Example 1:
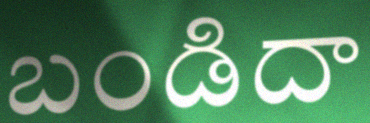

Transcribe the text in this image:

బండిదా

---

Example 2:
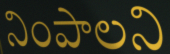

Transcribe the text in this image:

నింపాలని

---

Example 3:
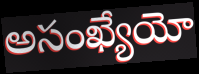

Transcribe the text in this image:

అసంఖ్యేయో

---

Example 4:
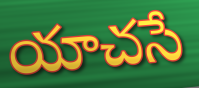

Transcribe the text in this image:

యాచసే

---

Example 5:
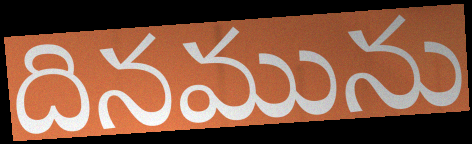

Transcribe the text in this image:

దినమును